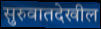
सुरुवातदेखील